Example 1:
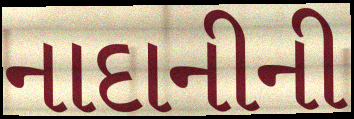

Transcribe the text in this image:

નાદાનીની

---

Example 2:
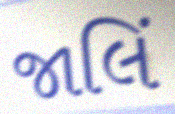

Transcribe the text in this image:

જાલિં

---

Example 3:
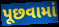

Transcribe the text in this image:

પૂછવામાં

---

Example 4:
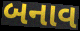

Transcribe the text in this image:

બનાવ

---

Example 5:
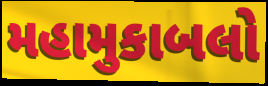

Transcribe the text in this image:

મહામુકાબલો